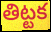
తిట్టక